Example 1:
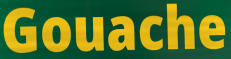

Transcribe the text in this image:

Gouache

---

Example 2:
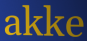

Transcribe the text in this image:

akke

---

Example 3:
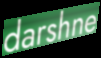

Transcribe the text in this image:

darshne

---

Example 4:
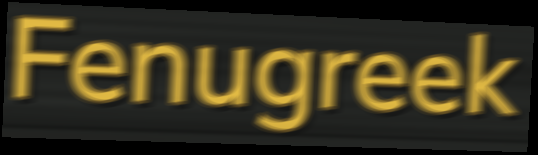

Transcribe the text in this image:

Fenugreek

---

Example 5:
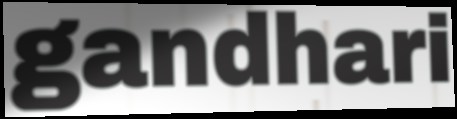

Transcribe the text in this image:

gandhari